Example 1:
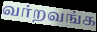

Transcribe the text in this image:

வர்றவங்க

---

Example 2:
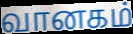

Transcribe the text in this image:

வானகம்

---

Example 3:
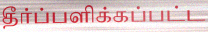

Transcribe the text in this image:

தீர்ப்பளிக்கப்பட்ட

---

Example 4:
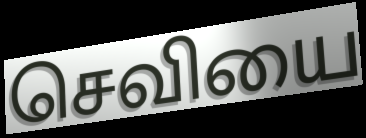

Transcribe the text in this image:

செவியை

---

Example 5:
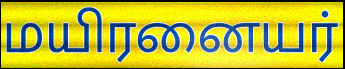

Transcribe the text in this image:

மயிரனையர்